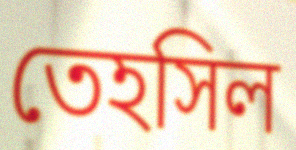
তেহসিল